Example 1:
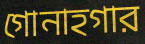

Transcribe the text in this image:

গোনাহগার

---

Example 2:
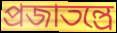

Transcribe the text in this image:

প্রজাতন্ত্রে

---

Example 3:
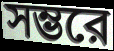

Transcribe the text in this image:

সম্ভরে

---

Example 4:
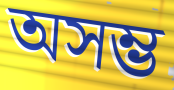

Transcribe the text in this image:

অসম্ভ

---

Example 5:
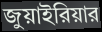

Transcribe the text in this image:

জুয়াইরিয়ার